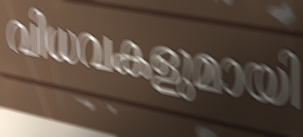
വിധവകളുമായി